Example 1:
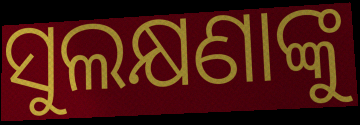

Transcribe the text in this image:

ସୁଲକ୍ଷଣାଙ୍କୁ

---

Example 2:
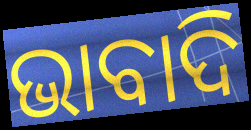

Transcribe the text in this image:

ଭାବାଦି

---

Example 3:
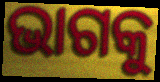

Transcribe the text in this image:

ଭାଗକୁ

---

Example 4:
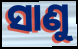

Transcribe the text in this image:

ସାଣୁ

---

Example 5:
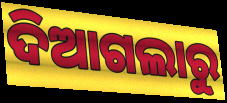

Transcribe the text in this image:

ଦିଆଗଲାରୁ